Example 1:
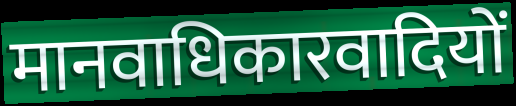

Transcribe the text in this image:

मानवाधिकारवादियों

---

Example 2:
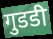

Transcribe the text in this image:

गुडडी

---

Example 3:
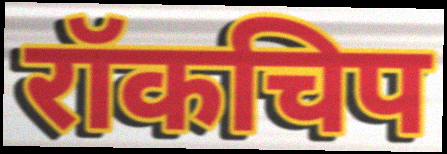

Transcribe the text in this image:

रॉकचिप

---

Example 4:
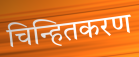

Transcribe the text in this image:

चिन्हितकरण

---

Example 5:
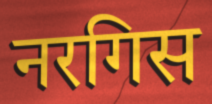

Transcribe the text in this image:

नरगिस